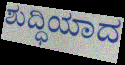
ಶುದ್ಧಿಯಾದ